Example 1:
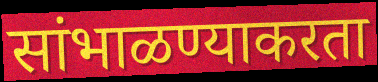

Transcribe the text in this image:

सांभाळण्याकरता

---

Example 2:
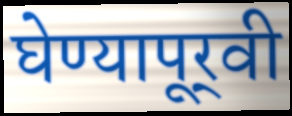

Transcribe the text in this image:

घेण्यापूर्वी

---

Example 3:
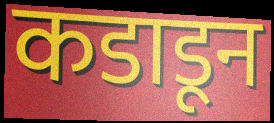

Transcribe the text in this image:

कडाडून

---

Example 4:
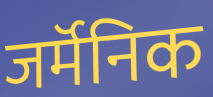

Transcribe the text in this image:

जर्मॅनिक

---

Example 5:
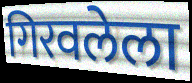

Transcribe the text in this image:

गिरवलेला